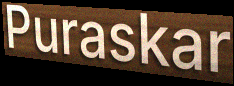
Puraskar